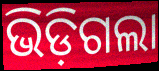
ଭିଡ଼ିଗଲା